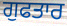
ਗੁਫਤਾਰ